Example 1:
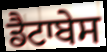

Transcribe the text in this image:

ਡੈਟਾਬੇਸ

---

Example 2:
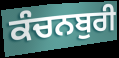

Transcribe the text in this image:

ਕੰਚਨਬੁਰੀ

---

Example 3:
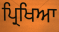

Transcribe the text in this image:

ਪ੍ਰਿਖਿਆ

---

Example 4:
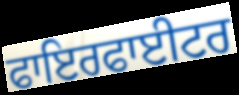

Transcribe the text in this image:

ਫਾਇਰਫਾਈਟਰ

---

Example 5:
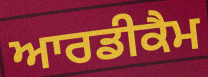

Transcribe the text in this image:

ਆਰਡੀਕੈਮ